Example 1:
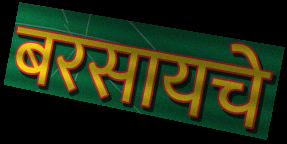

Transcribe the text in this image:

बरसायचे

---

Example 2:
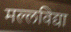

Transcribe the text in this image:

मल्लविद्या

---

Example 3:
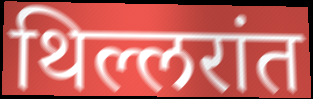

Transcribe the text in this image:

थिल्लरांत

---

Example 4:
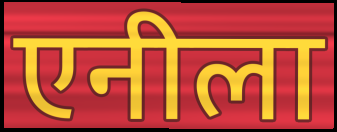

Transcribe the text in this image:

एनीला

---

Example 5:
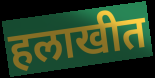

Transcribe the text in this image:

हलाखीत